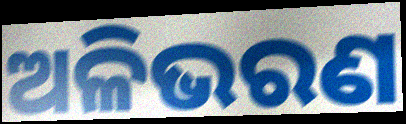
ଅଳିଭରଣ